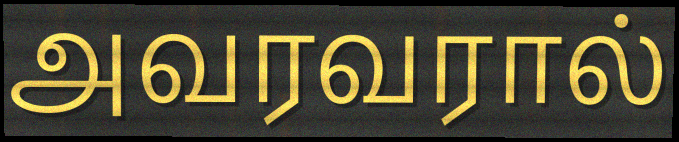
அவரவரால்